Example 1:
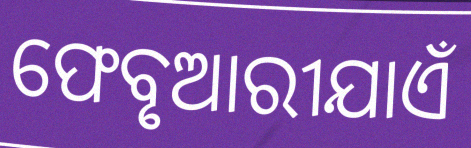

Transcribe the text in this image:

ଫେବୃଆରୀଯାଏଁ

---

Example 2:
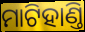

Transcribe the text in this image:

ମାଟିହାଣ୍ତି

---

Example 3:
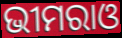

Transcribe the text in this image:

ଭୀମରାଓ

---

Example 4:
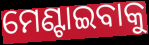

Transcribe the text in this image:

ମେଣ୍ଟାଇବାକୁ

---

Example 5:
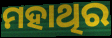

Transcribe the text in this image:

ମହାଥିର